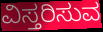
ವಿಸ್ತರಿಸುವ